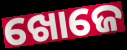
ଖୋଜେ